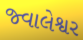
જ્વાલેશ્વર